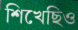
শিখেছিও